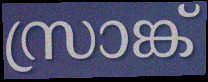
സ്രാങ്ക്